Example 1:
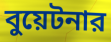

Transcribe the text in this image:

বুয়েটনার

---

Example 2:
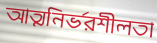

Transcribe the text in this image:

আত্মনির্ভরশীলতা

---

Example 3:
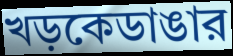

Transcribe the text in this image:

খড়কেডাঙার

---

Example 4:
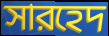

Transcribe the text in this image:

সারহেদ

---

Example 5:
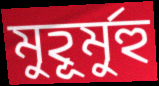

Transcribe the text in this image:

মুহূর্মুহু